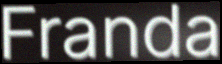
Franda